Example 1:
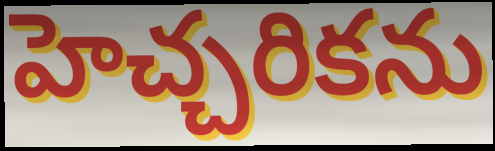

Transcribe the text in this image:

హెచ్చరికను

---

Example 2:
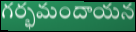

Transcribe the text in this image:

గర్భమందాయన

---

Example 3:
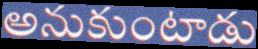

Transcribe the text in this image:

అనుకుంటాడు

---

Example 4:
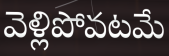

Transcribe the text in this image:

వెళ్లిపోవటమే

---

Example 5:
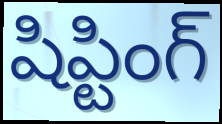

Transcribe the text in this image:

షిప్టింగ్